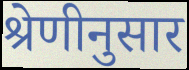
श्रेणीनुसार